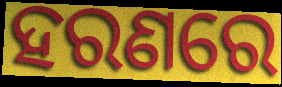
ହରଣରେ